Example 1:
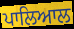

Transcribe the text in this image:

ਪਾਲਿਆਲ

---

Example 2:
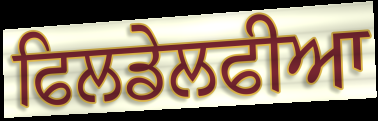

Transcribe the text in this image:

ਫਿਲਡੇਲਫੀਆ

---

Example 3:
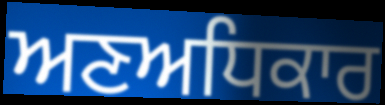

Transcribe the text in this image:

ਅਣਅਧਿਕਾਰ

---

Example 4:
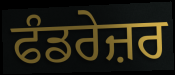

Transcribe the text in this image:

ਫੰਡਰੇਜ਼ਰ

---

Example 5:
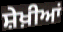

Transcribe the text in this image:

ਸ਼ੇਖ਼ੀਆਂ